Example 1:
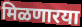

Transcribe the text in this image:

मिळणारया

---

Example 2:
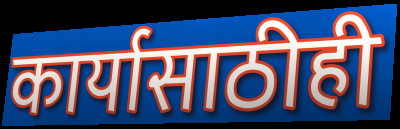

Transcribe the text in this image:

कार्यासाठीही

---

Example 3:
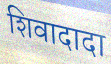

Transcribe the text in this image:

शिवादादा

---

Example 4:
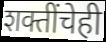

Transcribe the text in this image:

शक्तींचेही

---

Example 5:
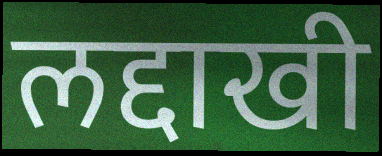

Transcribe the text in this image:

लद्दाखी